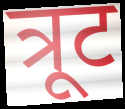
त्रूट